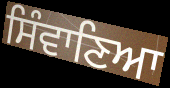
ਸਿੰਵਾਣਿਆ